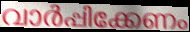
വാർപ്പിക്കേണം